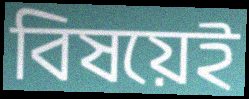
বিষয়েই